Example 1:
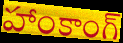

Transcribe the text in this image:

హాంకాంగ్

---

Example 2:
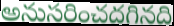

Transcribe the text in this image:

అనుసరించదగినది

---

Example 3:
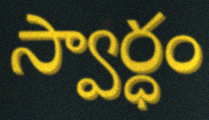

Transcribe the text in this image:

స్వార్ధం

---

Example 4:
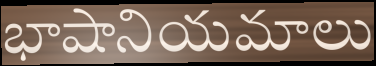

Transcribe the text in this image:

భాషానియమాలు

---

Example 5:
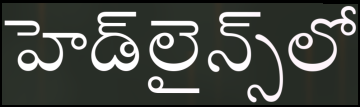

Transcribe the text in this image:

హెడ్‌లైన్స్‌లో